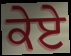
ਕੇਏ